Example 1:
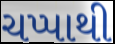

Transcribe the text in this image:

ચપ્પાથી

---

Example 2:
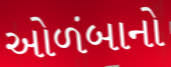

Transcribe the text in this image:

ઓળંબાનો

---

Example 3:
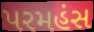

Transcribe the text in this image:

પરમહંસ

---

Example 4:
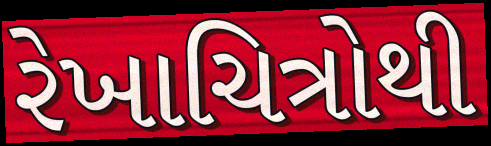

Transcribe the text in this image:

રેખાચિત્રોથી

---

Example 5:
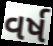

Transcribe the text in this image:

વર્ષ